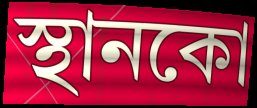
স্থানকো